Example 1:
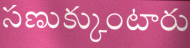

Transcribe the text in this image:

సణుక్కుంటారు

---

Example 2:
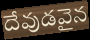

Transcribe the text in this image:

దేవుడవైన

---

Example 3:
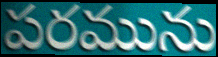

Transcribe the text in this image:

పరమును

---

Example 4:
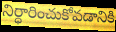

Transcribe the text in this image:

నిర్ధారించుకోవడానికి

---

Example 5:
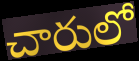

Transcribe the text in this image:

చారులో